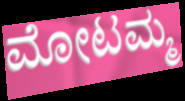
ಮೋಟಮ್ಮ